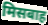
मिसबाह